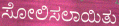
ಸೋಲಿಸಲಾಯಿತು